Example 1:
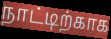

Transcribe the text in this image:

நாட்டிற்காக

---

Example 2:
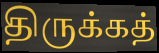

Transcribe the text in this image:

திருக்கத்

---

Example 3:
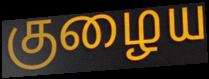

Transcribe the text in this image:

குழைய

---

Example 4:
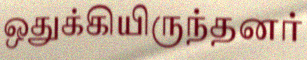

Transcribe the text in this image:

ஒதுக்கியிருந்தனர்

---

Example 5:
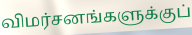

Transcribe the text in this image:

விமர்சனங்களுக்குப்